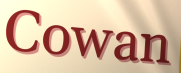
Cowan